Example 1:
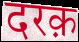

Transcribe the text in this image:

दरक़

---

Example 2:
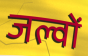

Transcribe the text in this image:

जल्वों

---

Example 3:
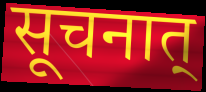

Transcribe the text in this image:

सूचनात्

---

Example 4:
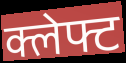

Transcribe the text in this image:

क्लेफ्ट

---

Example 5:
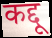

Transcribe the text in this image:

कद्दू